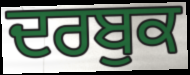
ਦਰਬੁਕ